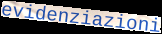
evidenziazioni